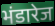
भंडारेज